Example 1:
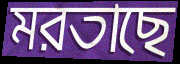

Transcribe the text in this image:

মরতাছে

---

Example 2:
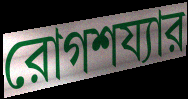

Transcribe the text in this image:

রোগশয্যার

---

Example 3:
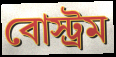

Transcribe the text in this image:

বোস্ট্রম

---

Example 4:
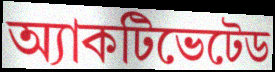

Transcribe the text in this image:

অ্যাকটিভেটেড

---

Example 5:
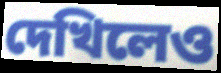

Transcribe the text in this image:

দেখিলেও